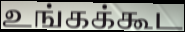
உங்கக்கூட